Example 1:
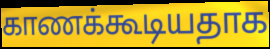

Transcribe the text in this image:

காணக்கூடியதாக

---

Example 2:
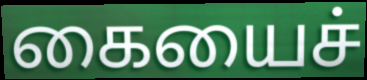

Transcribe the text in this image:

கையைச்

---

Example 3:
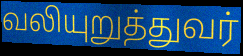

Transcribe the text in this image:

வலியுறுத்துவர்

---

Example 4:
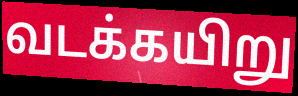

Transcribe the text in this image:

வடக்கயிறு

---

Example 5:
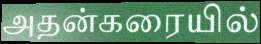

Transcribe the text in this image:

அதன்கரையில்